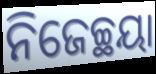
ନିଜେଚ୍ଛୟା